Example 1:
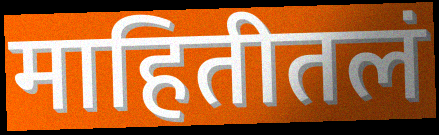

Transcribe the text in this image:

माहितीतलं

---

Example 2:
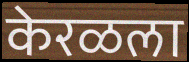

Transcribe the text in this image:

केरळला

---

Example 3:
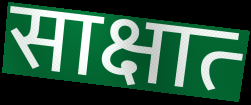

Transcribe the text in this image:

साक्षात्‍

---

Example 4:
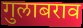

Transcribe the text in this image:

गुलाबराव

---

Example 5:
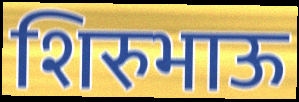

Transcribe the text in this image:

शिरुभाऊ